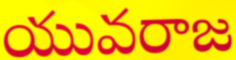
యువరాజ